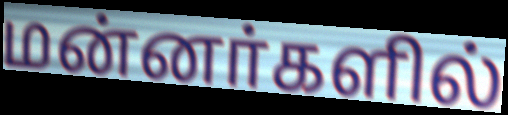
மன்னர்களில்